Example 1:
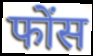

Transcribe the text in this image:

फोंस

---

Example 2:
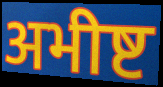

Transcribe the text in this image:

अभीष्ट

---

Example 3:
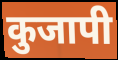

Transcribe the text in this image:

कुजापी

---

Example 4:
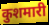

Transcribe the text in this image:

कुशमारी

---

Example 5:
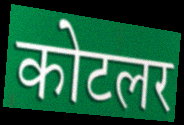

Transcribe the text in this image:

कोटलर